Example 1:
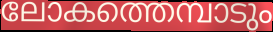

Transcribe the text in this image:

ലോകത്തെമ്പാടും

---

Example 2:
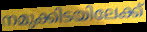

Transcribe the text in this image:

നമുക്കിടയിലേക്ക്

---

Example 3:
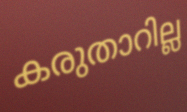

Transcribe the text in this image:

കരുതാറില്ല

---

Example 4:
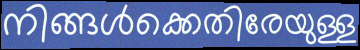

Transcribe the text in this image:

നിങ്ങൾക്കെതിരേയുള്ള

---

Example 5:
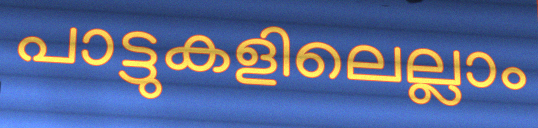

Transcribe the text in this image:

പാട്ടുകളിലെല്ലാം